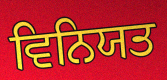
ਵਿਨਿਯਤ